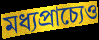
মধ্যপ্রাচ্যেও